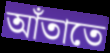
আঁতাতে